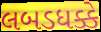
લબડધક્કે